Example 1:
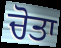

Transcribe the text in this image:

ਚੋਤਾ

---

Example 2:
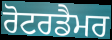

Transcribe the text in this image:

ਰੋਟਰਡੈਮਰ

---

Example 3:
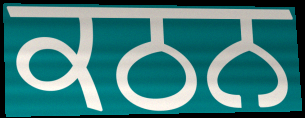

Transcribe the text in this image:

ਕਠਨ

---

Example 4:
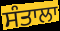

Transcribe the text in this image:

ਸੰਤਾਲਾ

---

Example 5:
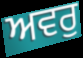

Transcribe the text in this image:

ਅਵਰੁ